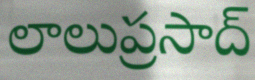
లాలుప్రసాద్